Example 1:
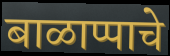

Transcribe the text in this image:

बाळाप्पाचे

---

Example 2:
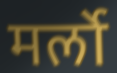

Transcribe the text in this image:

मर्लो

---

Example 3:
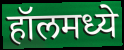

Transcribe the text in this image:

हॉलमध्ये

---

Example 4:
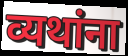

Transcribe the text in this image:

व्यथांना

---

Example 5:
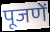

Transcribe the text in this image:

पूजणें